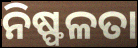
ନିଷ୍ଫଳତା